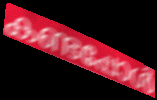
കണ്ടപ്പോൾ